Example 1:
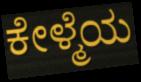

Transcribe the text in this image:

ಕೇಳ್ಮೆಯ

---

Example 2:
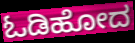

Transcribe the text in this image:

ಓಡಿಹೋದ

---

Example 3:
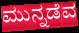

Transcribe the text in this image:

ಮುನ್ನಡೆವ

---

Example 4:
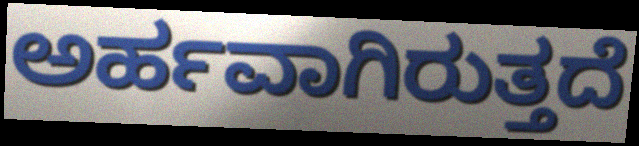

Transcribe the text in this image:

ಅರ್ಹವಾಗಿರುತ್ತದೆ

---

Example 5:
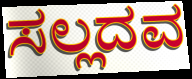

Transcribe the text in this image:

ಸಲ್ಲದವ